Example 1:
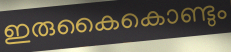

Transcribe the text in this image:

ഇരുകൈകൊണ്ടും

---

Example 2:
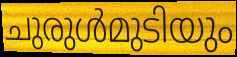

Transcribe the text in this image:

ചുരുൾമുടിയും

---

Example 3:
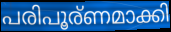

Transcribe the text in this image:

പരിപൂര്ണമാക്കി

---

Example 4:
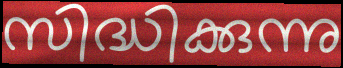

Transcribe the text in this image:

സിദ്ധിക്കുന്നു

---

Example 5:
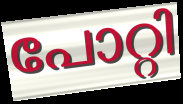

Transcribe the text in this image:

പോറ്റി